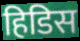
हिडिस